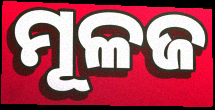
ମୂଳଜ